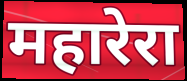
महारेरा